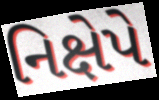
નિક્ષેપે